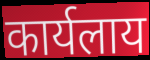
कार्यलाय